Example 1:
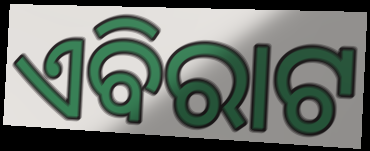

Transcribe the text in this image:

ଏବିରାଟ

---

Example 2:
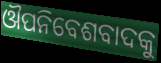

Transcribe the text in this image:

ଔପନିବେଶବାଦକୁ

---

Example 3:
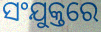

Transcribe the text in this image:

ସଂଯୁକ୍ତରେ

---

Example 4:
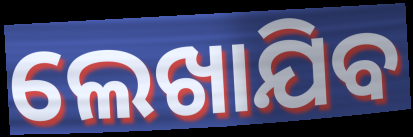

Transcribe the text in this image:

ଲେଖାଯିବ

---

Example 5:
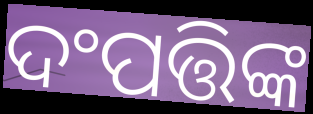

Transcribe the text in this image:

ଦଂପତ୍ତିଙ୍କ